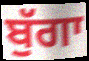
ਬੁੱਗਾ